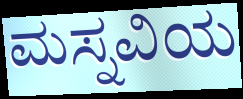
ಮಸ್ನವಿಯ